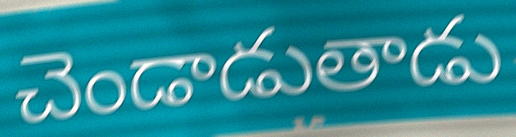
చెండాడుతాడు